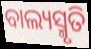
ବାଲ୍ୟସ୍ମୃତି